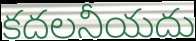
కదలనీయదు